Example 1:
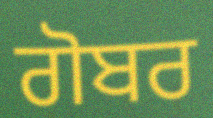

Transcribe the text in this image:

ਗੋਬਰ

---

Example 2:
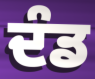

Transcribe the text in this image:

ਦੰਡ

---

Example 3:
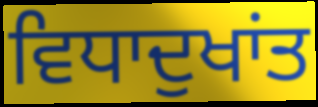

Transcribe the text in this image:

ਵਿਧਾਦੁਖਾਂਤ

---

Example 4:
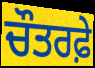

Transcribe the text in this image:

ਚੌਤਰਫ਼ੇ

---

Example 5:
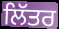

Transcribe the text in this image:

ਲਿੱਤਰ